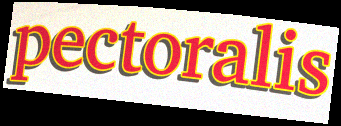
pectoralis